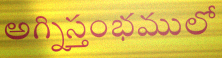
అగ్నిస్తంభములో